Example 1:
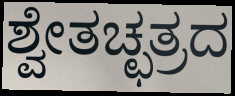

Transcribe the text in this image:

ಶ್ವೇತಚ್ಛತ್ರದ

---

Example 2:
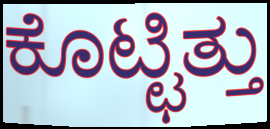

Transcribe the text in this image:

ಕೊಟ್ಟಿತ್ತು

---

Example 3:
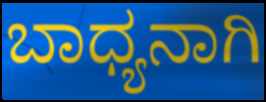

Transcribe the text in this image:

ಬಾಧ್ಯನಾಗಿ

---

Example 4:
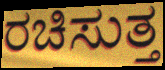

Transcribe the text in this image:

ರಚಿಸುತ್ತ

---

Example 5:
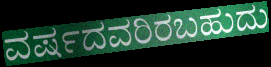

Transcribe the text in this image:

ವರ್ಷದವರಿರಬಹುದು